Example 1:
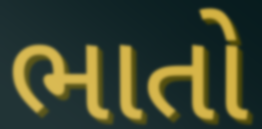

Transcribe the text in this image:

ભાતો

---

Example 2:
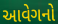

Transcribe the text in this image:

આવેગનો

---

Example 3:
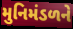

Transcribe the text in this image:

મુનિમંડળને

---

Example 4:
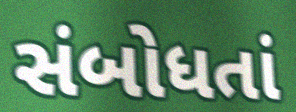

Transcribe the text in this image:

સંબોધતાં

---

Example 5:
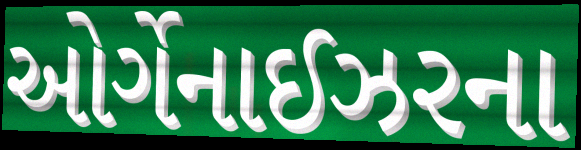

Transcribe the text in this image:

ઓર્ગેનાઈઝરના